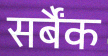
सर्बैंक